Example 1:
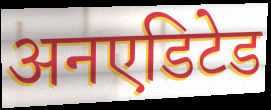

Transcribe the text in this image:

अनएडिटेड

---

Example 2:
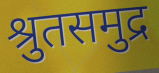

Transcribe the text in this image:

श्रुतसमुद्र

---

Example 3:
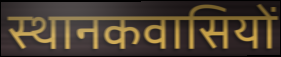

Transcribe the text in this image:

स्थानकवासियों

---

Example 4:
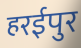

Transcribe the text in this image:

हरईपुर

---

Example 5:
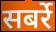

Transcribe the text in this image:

सबर्रे